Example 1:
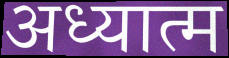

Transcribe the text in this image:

अध्यात्म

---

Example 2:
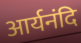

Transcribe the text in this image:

आर्यनंदि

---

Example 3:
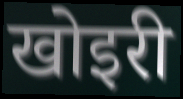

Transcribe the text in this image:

खोइरी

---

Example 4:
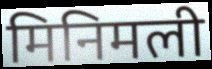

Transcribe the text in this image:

मिनिमली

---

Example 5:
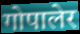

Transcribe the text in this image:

गोपालेर